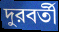
দুরবর্তী